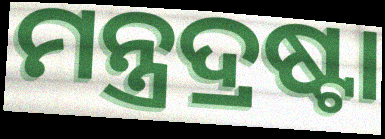
ମନ୍ତ୍ରଦ୍ରଷ୍ଟା